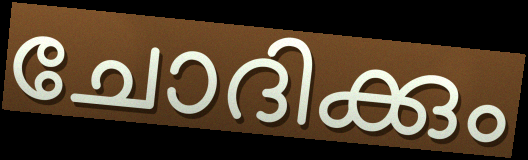
ചോദിക്കും